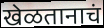
खेळतानाचं